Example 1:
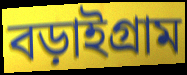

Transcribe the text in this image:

বড়াইগ্রাম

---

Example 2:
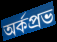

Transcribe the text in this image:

অর্কপ্রভ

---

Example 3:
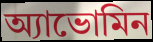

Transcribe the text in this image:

অ্যাভোমিন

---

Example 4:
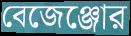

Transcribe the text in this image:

বেজেঞ্জোর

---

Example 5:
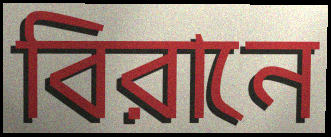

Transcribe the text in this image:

বিরানে